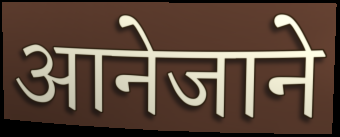
आनेजाने